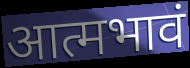
आत्मभावं